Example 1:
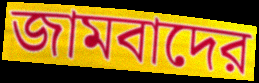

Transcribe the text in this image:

জামবাদের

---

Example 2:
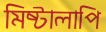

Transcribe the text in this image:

মিষ্টালাপি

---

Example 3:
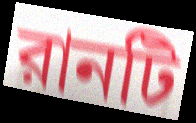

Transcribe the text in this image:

রানটি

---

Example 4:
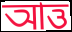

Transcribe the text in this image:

আত্ত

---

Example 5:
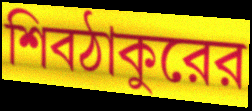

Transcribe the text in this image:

শিবঠাকুরের